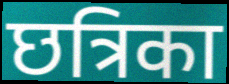
छत्रिका